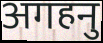
अगहनु